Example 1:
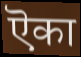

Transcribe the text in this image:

ऎका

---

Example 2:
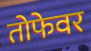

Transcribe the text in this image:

तोफेवर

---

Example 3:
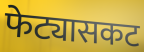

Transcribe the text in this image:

फेट्यासकट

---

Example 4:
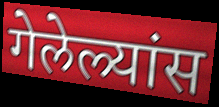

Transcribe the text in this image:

गेलेल्यांस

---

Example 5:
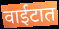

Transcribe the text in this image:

वाईटात